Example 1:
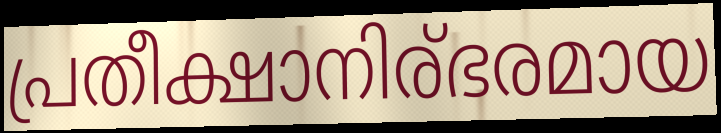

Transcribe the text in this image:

പ്രതീക്ഷാനിര്ഭരമായ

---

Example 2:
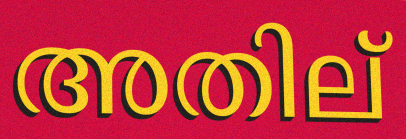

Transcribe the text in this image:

അതില്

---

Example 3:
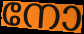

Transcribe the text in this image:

നോ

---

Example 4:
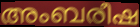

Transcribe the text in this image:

അംബരീഷ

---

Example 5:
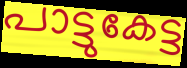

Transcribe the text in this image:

പാട്ടുകേട്ട